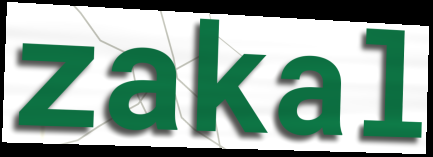
zakal